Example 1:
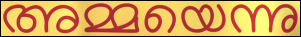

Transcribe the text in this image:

അമ്മയെന്നു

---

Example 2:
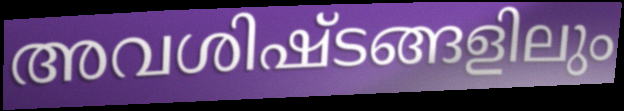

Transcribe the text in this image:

അവശിഷ്ടങ്ങളിലും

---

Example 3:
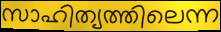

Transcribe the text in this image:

സാഹിത്യത്തിലെന്ന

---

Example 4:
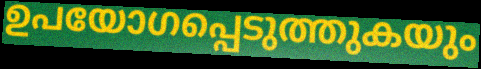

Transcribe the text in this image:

ഉപയോഗപ്പെടുത്തുകയും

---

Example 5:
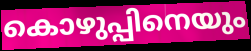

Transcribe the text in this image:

കൊഴുപ്പിനെയും